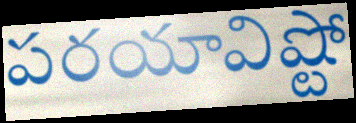
పరయావిష్టో